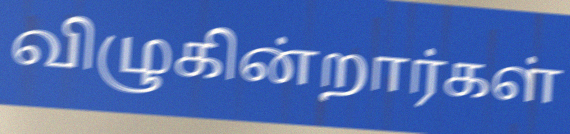
விழுகின்றார்கள்